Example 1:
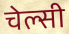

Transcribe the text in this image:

चेल्सी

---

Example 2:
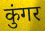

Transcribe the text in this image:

कुंगर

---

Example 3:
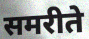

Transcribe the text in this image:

समरीते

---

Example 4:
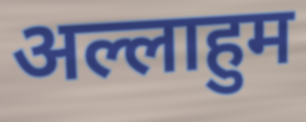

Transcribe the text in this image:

अल्लाहुम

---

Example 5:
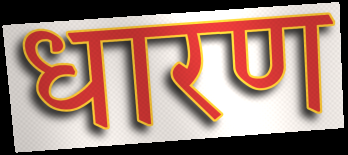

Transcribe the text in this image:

धारण